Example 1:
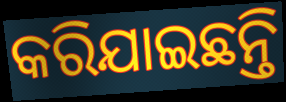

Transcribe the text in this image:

କରିଯାଇଛନ୍ତି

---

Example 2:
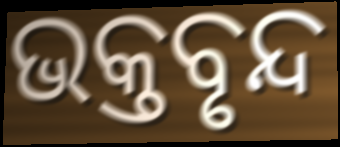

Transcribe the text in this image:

ଭକ୍ତବୃନ୍ଦ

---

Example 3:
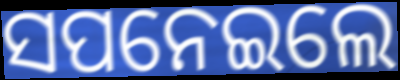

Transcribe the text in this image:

ସପନେଇଲେ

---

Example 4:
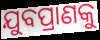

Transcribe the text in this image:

ଯୁବପ୍ରାଣକୁ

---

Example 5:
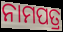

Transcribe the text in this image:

ନାମପତ୍ର